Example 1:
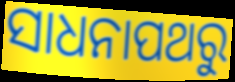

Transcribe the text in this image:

ସାଧନାପଥରୁ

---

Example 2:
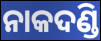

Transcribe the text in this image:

ନାକଦଣ୍ଡି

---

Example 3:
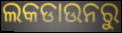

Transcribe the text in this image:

ଲକଡାଉନରୁ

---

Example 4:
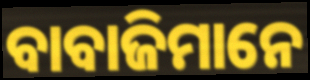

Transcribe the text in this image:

ବାବାଜିମାନେ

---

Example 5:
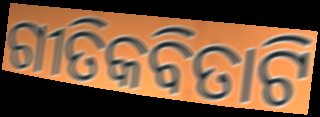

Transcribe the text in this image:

ଗୀତିକବିତାଟି